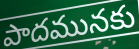
పాదమునకు